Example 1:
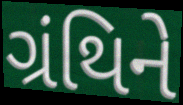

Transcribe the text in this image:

ગ્રંથિને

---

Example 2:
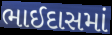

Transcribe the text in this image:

ભાઈદાસમાં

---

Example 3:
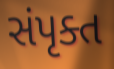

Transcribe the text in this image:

સંપૃક્ત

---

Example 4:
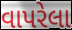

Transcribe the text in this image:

વાપરેલા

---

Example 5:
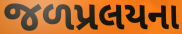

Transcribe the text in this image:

જળપ્રલયના